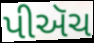
પીઍચ